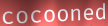
cocooned